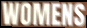
WOMENS